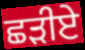
ਛੜੀਏ